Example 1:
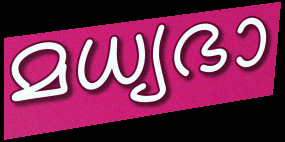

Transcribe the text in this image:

മധ്യഭാ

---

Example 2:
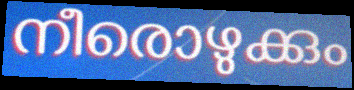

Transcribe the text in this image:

നീരൊഴുക്കും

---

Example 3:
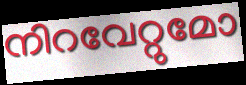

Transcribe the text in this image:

നിറവേറ്റുമോ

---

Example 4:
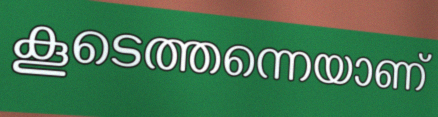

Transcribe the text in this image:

കൂടെത്തന്നെയാണ്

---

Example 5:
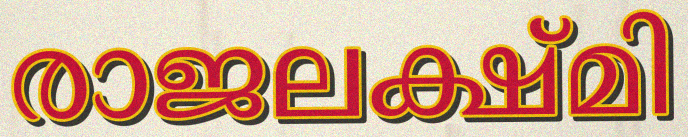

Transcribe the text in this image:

രാജലക്ഷ്മി